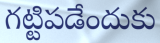
గట్టిపడేందుకు